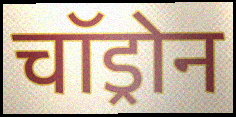
चॉड्रोन